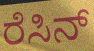
ರೆಸಿನ್